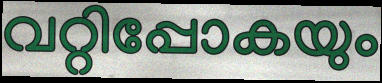
വറ്റിപ്പോകയും